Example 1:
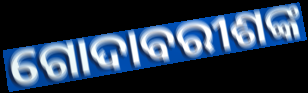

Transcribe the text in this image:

ଗୋଦାବରୀଶଙ୍କ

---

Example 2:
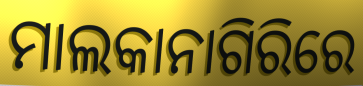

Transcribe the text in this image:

ମାଲକାନାଗିରିରେ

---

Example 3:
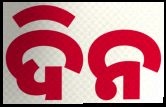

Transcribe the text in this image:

ଦିନ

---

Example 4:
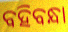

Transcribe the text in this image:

ବହିବନ୍ଧା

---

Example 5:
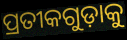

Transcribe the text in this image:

ପ୍ରତୀକଗୁଡ଼ାକୁ